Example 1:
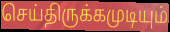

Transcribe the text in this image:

செய்திருக்கமுடியும்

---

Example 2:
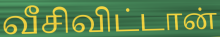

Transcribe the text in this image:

வீசிவிட்டான்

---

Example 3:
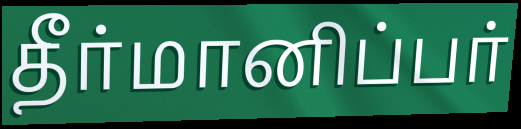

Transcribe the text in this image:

தீர்மானிப்பர்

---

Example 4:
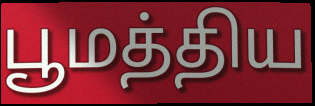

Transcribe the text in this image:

பூமத்திய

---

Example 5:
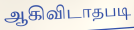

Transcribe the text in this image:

ஆகிவிடாதபடி